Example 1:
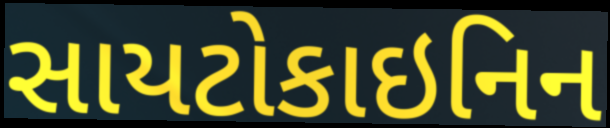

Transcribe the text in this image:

સાયટોકાઇનિન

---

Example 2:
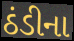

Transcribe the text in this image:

ઠંડીના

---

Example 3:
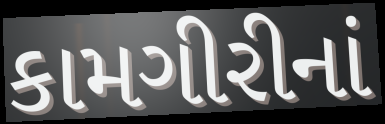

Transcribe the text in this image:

કામગીરીનાં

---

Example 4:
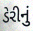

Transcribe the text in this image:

ડેરીનું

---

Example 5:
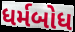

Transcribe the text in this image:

ધર્મબોધ